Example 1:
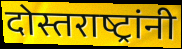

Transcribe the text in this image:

दोस्तराष्ट्रांनी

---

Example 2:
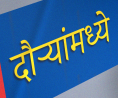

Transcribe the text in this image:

दौऱ्यांमध्ये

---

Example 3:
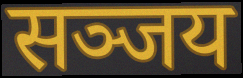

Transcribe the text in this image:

सञ्जय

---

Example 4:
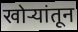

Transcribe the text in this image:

खोऱ्यांतून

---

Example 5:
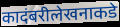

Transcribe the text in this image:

कादंबरीलेखनाकडे